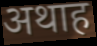
अथाह